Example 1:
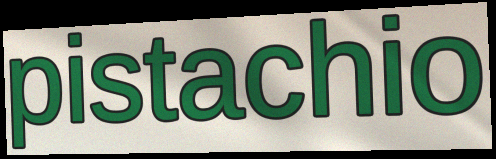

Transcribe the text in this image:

pistachio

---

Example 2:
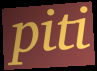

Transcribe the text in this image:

piti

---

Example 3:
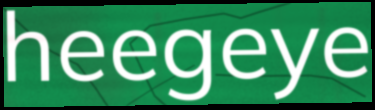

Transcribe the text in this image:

heegeye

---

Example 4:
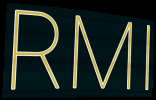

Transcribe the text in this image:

RMI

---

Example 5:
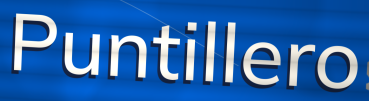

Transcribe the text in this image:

Puntillero